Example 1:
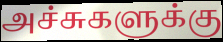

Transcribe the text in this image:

அச்சுகளுக்கு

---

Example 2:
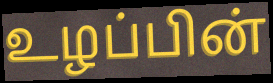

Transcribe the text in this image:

உழப்பின்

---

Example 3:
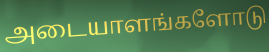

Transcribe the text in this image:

அடையாளங்களோடு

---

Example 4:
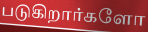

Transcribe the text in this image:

படுகிறார்களோ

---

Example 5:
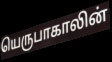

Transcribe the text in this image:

யெருபாகாலின்